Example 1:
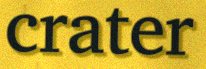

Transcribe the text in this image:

crater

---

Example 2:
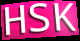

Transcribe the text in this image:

HSK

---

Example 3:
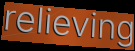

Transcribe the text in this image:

relieving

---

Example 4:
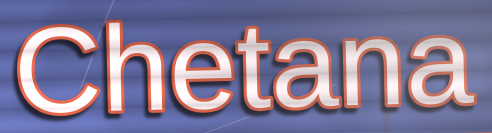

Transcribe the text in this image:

Chetana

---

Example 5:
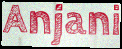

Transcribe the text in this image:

Anjani